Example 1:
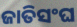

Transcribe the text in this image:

ଜାତିସଂଘ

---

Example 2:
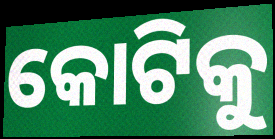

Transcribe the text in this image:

କୋଟିକୁ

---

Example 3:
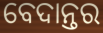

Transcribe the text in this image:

ବେଦାନ୍ତର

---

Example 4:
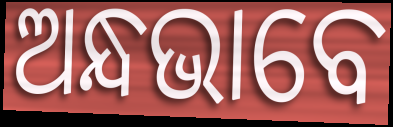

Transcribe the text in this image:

ଅନ୍ଧଭାବେ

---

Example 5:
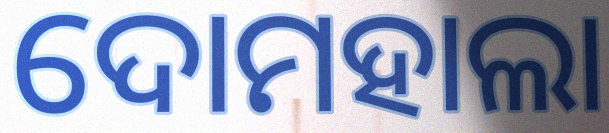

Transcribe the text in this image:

ଦୋମହାଲା